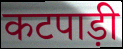
कटपाड़ी